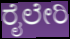
ರೈಲೇರಿ